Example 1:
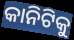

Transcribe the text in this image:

କାନିଟିକୁ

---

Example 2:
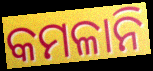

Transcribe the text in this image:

କମଳାନି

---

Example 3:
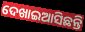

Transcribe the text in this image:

ଦେଖାଇଆସିଛନ୍ତି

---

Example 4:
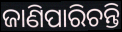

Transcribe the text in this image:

ଜାଣିପାରିଚନ୍ତି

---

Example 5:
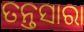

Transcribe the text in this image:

ତନ୍ତସାରା